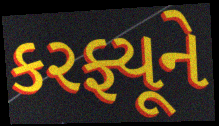
કરફ્યૂને